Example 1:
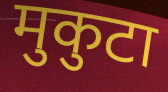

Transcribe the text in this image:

मुकुटा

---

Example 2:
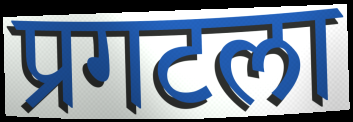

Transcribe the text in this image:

प्रगटला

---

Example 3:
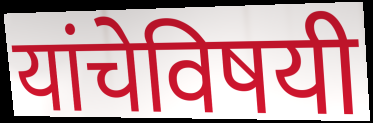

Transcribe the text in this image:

यांचेविषयी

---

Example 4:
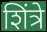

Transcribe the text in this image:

शिंत्रे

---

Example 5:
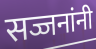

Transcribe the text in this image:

सज्जनांनी